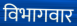
विभागवार